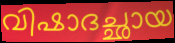
വിഷാദച്ഛായ